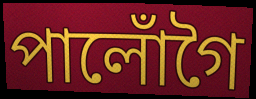
পালোঁগৈ